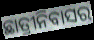
ଛାତ୍ରୀନିବାସର